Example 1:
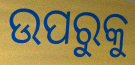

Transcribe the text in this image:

ଉପରୁକୁ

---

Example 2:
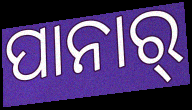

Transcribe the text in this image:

ପାନାର୍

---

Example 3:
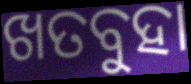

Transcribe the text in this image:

ଖତବୁହା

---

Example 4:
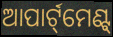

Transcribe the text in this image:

ଆପାର୍ଟ୍‌ମେଣ୍ଟ୍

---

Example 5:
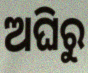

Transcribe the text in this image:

ଅଘିରୁ